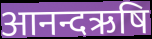
आनन्दऋषि